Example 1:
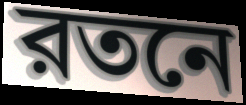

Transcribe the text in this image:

রতনে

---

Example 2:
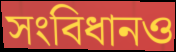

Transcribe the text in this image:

সংবিধানও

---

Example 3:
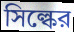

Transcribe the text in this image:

সিল্কের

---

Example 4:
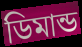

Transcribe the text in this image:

ডিমান্ড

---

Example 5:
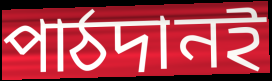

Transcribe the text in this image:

পাঠদানই